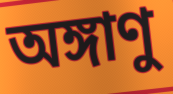
অঙ্গাণু